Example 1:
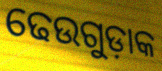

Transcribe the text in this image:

ଢେଉଗୁଡ଼ାକ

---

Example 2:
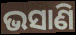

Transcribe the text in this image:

ଭସାଣି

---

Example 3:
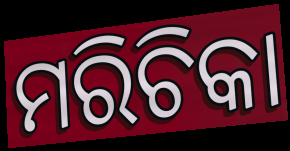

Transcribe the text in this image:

ମରିଚିକା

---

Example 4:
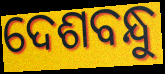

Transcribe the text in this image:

ଦେଶବନ୍ଧୁ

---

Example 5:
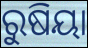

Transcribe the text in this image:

ରୁଷିୟା